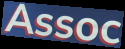
Assoc